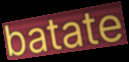
batate